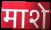
माशे